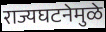
राज्यघटनेमुळे